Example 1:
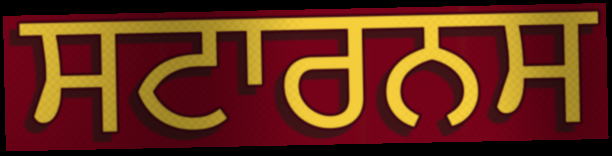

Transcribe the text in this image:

ਸਟਾਰਨਸ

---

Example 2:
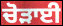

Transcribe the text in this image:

ਚੋੜਾਈ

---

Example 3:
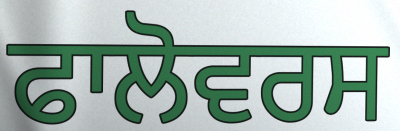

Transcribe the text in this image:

ਫਾਲੋਵਰਸ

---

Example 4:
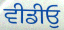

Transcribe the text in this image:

ਵੀਡੀਓੁ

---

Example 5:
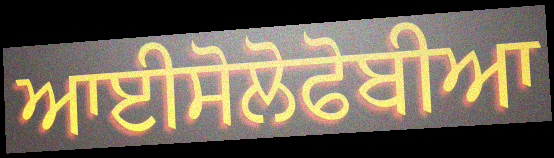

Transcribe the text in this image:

ਆਈਸੋਲੋਫੋਬੀਆ